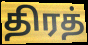
திரத்